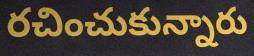
రచించుకున్నారు